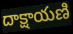
దాక్షాయణి